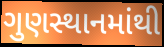
ગુણસ્થાનમાંથી